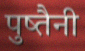
पुष्तैनी